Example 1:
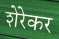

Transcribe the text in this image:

शेरेकर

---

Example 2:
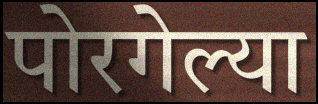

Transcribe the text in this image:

पोरगेल्या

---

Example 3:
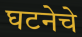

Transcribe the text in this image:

घटनेचे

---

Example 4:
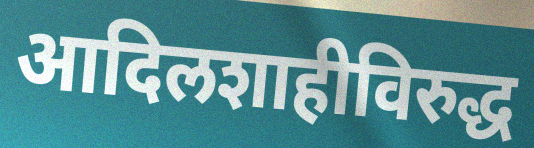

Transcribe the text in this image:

आदिलशाहीविरुद्ध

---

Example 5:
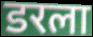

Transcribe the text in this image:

डरला